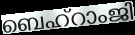
ബെഹ്റാംജി